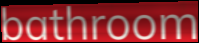
bathroom